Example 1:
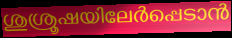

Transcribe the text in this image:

ശുശ്രൂഷയിലേർപ്പെടാൻ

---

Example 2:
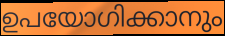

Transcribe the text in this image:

ഉപയോഗിക്കാനും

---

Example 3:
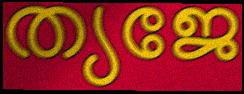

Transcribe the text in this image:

ത്യജേ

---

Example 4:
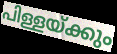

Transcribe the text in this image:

പിള്ളയ്ക്കും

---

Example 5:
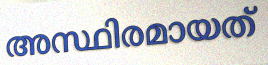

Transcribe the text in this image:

അസ്ഥിരമായത്